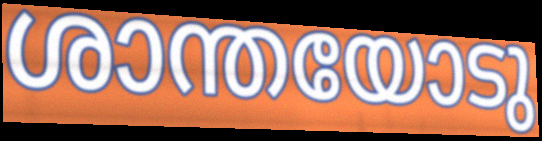
ശാന്തയോടു